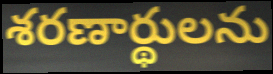
శరణార్థులను